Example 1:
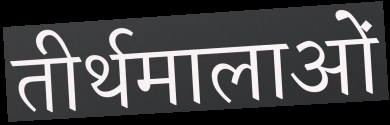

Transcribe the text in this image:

तीर्थमालाओं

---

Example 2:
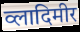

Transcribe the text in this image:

व्‍लादिमीर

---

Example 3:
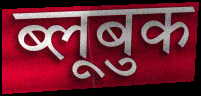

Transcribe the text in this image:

ब्लूबुक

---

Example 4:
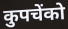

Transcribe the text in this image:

कुपचेंको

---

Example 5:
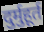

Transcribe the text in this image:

दुर्मुहूर्त